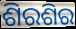
ଶିରଶିର